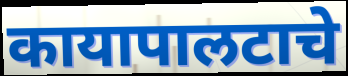
कायापालटाचे